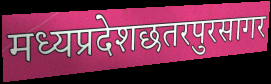
मध्यप्रदेशछतरपुरसागर